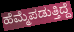
ಹೆಮ್ಮೆಪಡುತ್ತಿದ್ದೆ